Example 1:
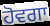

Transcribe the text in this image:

ਹੋਵਗਾ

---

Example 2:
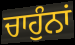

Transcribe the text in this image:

ਚਾਹੁੰਨਾਂ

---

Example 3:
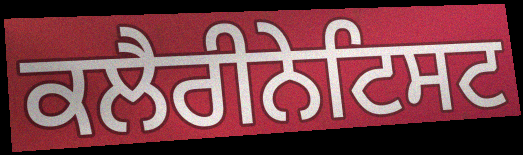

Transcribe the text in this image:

ਕਲੈਰੀਨੇਟਿਸਟ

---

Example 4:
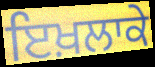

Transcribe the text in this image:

ਇਖ਼ਲਾਕੇ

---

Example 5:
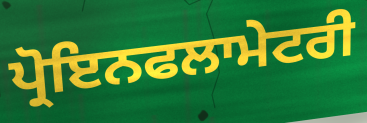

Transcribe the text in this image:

ਪ੍ਰੋਇਨਫਲਾਮੇਟਰੀ